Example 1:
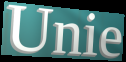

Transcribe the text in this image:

Unie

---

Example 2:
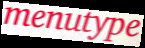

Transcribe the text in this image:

menutype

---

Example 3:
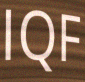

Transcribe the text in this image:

IQF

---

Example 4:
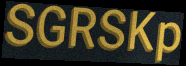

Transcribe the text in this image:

SGRSKp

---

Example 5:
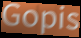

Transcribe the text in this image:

Gopis